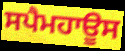
ਸਪੈਮਹਾਊਸ